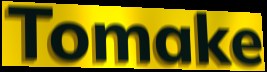
Tomake